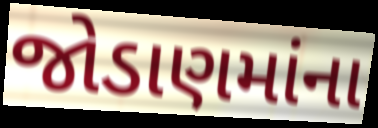
જોડાણમાંના